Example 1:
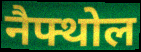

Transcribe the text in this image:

नैफ्थोल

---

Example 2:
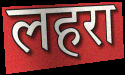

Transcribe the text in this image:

लहरा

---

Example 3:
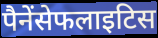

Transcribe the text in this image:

पैनेंसेफलाइटिस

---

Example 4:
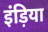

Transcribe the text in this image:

इंड़िया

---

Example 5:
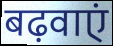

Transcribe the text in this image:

बढ़वाएं